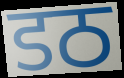
डठ